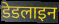
डेडलाइन